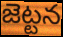
జెట్టన